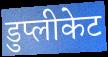
डुप्‍लीकेट